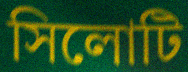
সিলোটি